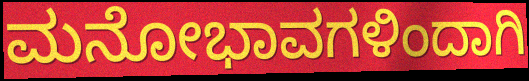
ಮನೋಭಾವಗಳಿಂದಾಗಿ